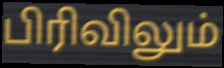
பிரிவிலும்